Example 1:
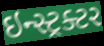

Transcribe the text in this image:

ઇન્સ્ટ્રક્ટર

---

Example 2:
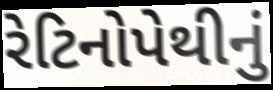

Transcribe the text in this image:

રેટિનોપેથીનું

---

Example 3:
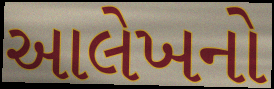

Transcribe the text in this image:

આલેખનો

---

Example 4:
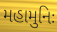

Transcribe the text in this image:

મહામુનિઃ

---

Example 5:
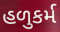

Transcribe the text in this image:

હળુકર્મ